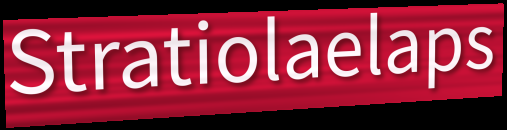
Stratiolaelaps